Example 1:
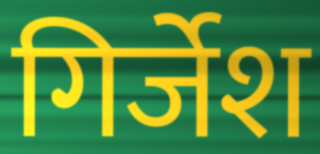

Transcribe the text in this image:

गिर्जेश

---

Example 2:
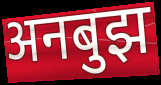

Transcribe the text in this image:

अनबुझ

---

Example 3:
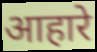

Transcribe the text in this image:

आहारे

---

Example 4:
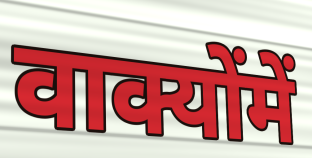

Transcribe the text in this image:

वाक्योंमें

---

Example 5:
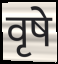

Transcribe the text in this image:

वृषे